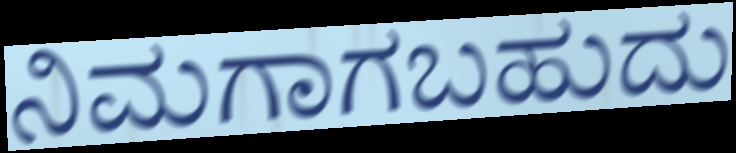
ನಿಮಗಾಗಬಹುದು